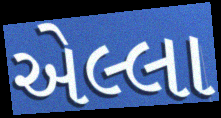
એલ્લા